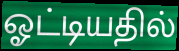
ஓட்டியதில்